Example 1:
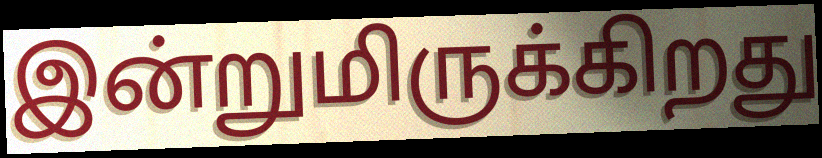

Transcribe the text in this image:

இன்றுமிருக்கிறது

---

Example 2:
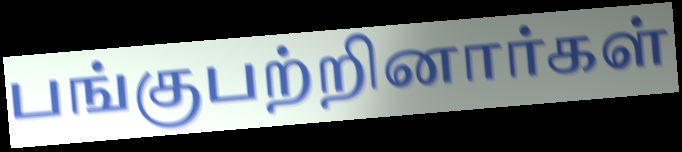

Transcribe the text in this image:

பங்குபற்றினார்கள்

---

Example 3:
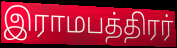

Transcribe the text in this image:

இராமபத்திரர்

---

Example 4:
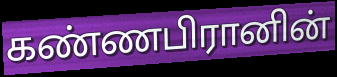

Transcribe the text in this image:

கண்ணபிரானின்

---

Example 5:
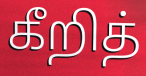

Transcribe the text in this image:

கீறித்